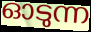
ഓടുന്ന